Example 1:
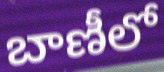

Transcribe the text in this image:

బాణీలో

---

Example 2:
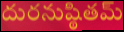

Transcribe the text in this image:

దురనుష్ఠితమ్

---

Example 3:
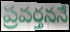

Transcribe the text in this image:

ప్రవర్తననే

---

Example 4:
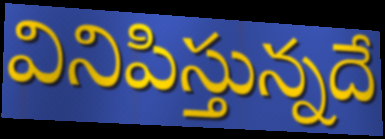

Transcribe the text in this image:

వినిపిస్తున్నదే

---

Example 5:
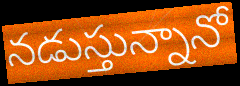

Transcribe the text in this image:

నడుస్తున్నానో